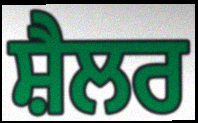
ਸ਼ੈਲਰ